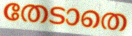
തേടാതെ